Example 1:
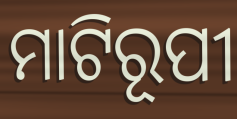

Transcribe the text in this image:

ମାଟିରୂପୀ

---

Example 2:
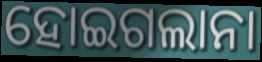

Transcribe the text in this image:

ହୋଇଗଲାନା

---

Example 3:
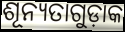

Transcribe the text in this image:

ଶୂନ୍ୟତାଗୁଡ଼ାକ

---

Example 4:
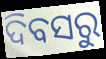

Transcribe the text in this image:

ଦିବସରୁ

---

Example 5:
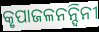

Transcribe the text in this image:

କୃପାଜଳନନ୍ଦିନୀ